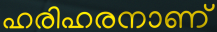
ഹരിഹരനാണ്